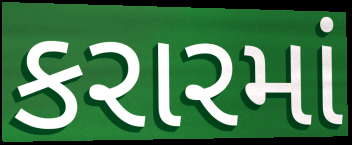
કરારમાં